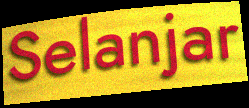
Selanjar